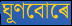
ঘূণবোৰে